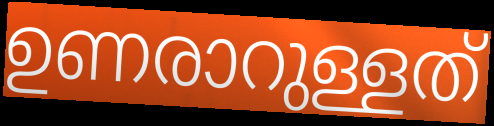
ഉണരാറുള്ളത്